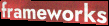
frameworks